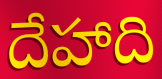
దేహాది